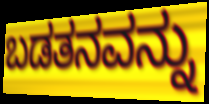
ಬಡತನವನ್ನು